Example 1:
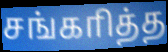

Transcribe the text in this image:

சங்கரித்த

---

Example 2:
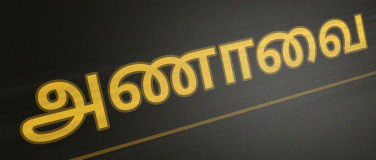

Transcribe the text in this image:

அணாவை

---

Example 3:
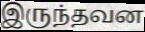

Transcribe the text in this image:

இருந்தவன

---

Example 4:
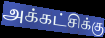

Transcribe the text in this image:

அக்கட்சிக்கு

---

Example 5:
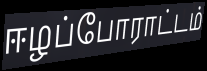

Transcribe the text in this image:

ஈழப்போராட்டம்